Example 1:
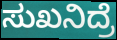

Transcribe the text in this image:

ಸುಖನಿದ್ರೆ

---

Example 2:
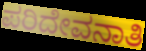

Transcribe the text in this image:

ಪರಿದೇವನಾತಿ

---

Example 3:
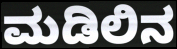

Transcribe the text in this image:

ಮಡಿಲಿನ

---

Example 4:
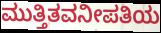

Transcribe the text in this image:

ಮುತ್ತಿತವನೀಪತಿಯ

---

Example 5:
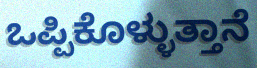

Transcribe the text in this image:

ಒಪ್ಪಿಕೊಳ್ಳುತ್ತಾನೆ